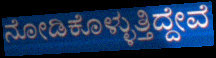
ನೋಡಿಕೊಳ್ಳುತ್ತಿದ್ದೇವೆ